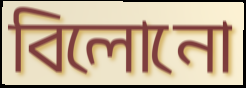
বিলোনো